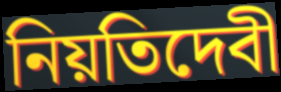
নিয়তিদেবী